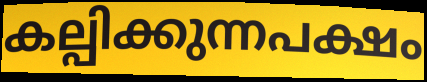
കല്പിക്കുന്നപക്ഷം